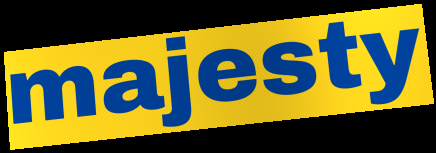
majesty